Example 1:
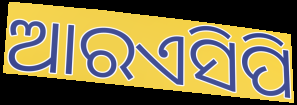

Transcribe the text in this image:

ଆରଏସିପି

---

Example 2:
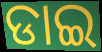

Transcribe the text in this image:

ଡାଇ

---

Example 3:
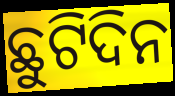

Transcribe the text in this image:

ଛୁଟିଦିନ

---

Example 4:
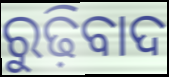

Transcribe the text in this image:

ରୁଢ଼ିବାଦ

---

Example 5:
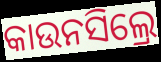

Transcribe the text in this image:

କାଉନସିଲ୍ରେ